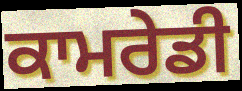
ਕਾਮਰੇਡੀ